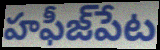
హఫీజ్‌పేట